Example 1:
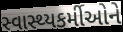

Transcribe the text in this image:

સ્વાસ્થ્યકર્મીઓને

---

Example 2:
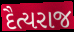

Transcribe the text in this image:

દૈત્યરાજ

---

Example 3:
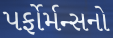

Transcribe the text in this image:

પર્ફોર્મન્સનો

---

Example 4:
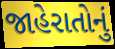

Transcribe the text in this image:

જાહેરાતોનું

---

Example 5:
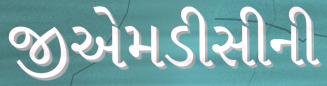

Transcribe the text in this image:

જીએમડીસીની